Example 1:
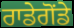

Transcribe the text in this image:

ਰਾਡੇਗੋਂਡੇ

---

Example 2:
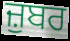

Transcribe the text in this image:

ਜ਼ੁਬਰ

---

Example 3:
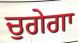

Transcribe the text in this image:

ਚੁਗੇਗਾ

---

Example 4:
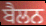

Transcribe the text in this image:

ਬੈਲਨ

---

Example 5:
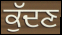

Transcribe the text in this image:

ਕੁੱਦਣ